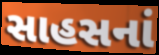
સાહસનાં